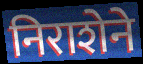
निराशेने